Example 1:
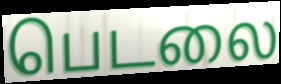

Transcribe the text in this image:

பெடலை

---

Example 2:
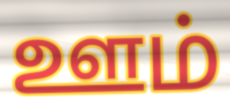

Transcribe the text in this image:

ஊம்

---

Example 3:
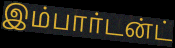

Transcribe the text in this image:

இம்பார்டன்ட்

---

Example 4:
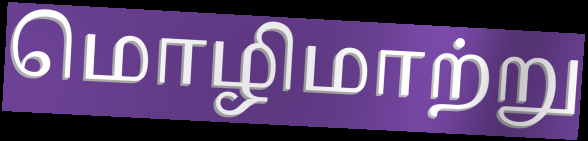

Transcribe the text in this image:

மொழிமாற்று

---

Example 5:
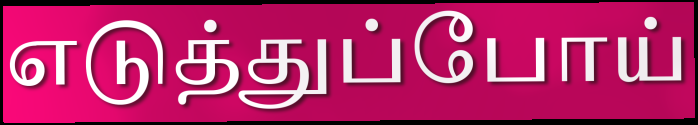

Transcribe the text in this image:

எடுத்துப்போய்